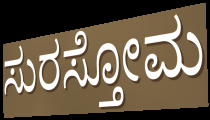
ಸುರಸ್ತೋಮ